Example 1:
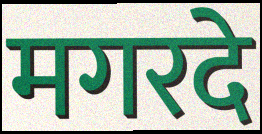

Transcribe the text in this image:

मगरदे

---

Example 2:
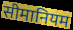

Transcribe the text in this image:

सीमानियम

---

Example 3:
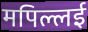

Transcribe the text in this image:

मपिल्लई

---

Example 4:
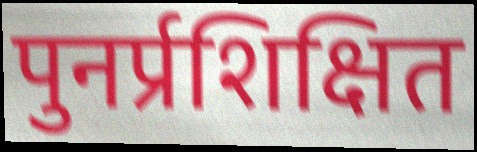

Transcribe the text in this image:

पुनर्प्रशिक्षित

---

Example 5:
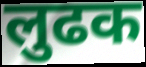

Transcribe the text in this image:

लुढक